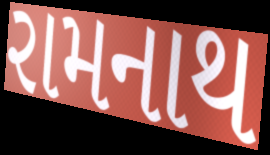
રામનાથ